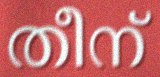
തീന്